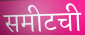
समीटची